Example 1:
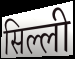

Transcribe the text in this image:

सिल्ली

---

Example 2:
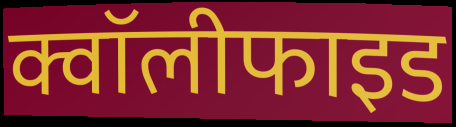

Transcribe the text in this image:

क्वॉलीफाइड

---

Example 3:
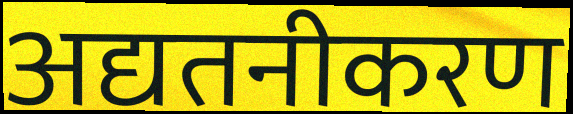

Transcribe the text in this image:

अद्यतनीकरण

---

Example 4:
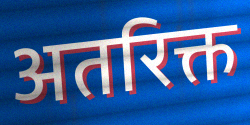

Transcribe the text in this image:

अतरिक्त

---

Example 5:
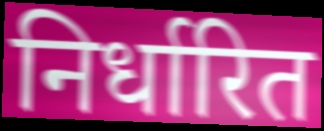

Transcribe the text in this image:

निर्धारित